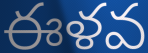
ఈళవ